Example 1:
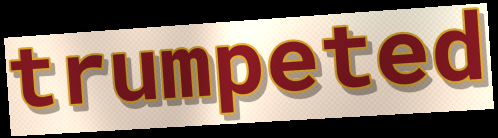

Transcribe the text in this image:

trumpeted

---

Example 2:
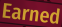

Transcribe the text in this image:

Earned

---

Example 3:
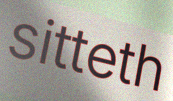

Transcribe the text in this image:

sitteth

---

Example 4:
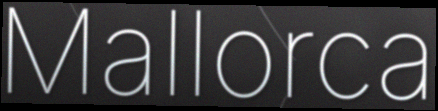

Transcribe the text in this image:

Mallorca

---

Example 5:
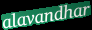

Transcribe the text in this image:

alavandhar